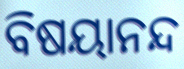
ବିଷୟାନନ୍ଦ